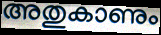
അതുകാണും